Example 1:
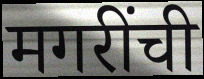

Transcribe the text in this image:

मगरींची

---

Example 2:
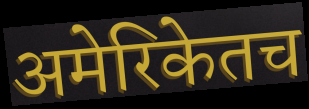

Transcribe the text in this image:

अमेरिकेतच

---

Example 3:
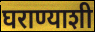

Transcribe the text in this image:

घराण्याशी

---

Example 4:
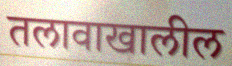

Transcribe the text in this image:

तलावाखालील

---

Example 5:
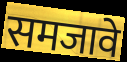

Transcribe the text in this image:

समजावे